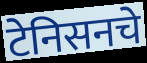
टेनिसनचे